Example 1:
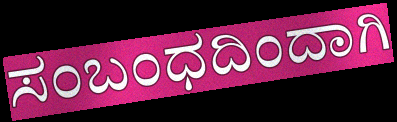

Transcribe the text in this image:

ಸಂಬಂಧದಿಂದಾಗಿ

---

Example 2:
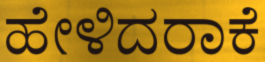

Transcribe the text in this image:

ಹೇಳಿದರಾಕೆ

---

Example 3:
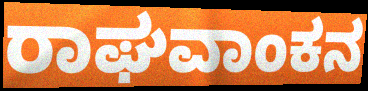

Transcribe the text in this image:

ರಾಘವಾಂಕನ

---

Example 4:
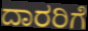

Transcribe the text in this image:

ದಾರರಿಗೆ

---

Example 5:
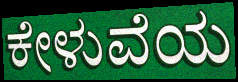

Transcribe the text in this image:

ಕೇಳುವೆಯ